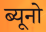
ब्यूनो